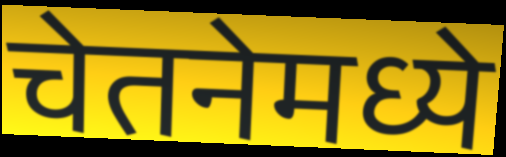
चेतनेमध्ये